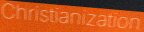
Christianization